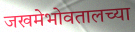
जखमेभोवतालच्या